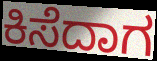
ಕಿಸೆದಾಗ